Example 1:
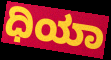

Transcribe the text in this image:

ಧಿಯಾ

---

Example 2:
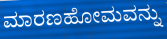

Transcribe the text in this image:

ಮಾರಣಹೋಮವನ್ನು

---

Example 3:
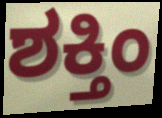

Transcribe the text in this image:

ಶಕ್ತಿಂ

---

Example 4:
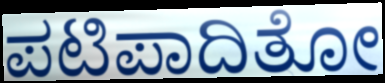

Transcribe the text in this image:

ಪಟಿಪಾದಿತೋ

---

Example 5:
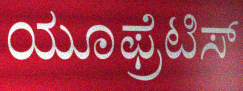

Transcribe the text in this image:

ಯೂಫ್ರೆಟಿಸ್